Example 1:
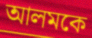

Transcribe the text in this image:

আলমকে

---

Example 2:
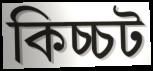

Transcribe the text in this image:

কিচ্চট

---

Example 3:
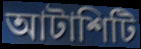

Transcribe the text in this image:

আটাশিটি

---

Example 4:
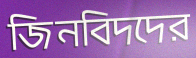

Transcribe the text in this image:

জিনবিদদের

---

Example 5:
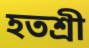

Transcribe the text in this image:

হতশ্রী